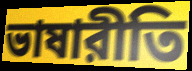
ভাষারীতি